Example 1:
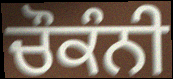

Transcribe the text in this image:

ਚੌਕੰਨੀ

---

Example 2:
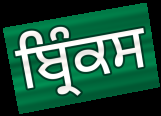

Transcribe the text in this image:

ਬ੍ਰਿੰਕਸ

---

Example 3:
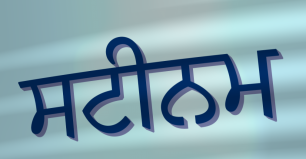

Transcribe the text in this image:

ਸਟੀਨਮ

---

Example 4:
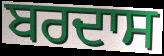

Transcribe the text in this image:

ਬਰਦਾਸ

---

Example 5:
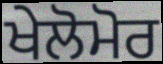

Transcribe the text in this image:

ਖੇਲੋਮੋਰ